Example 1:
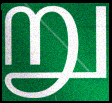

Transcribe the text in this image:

று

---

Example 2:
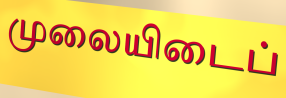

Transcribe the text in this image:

முலையிடைப்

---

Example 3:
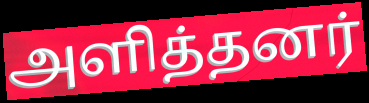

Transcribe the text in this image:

அளித்தனர்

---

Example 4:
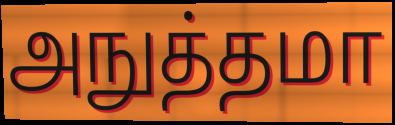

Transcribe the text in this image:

அநுத்தமா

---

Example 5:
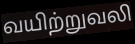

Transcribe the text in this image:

வயிற்றுவலி